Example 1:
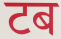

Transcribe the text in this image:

टब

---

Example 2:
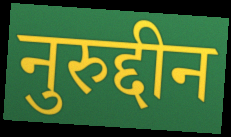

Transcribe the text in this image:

नुरुद्दीन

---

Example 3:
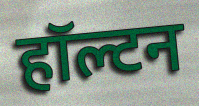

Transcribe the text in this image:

हॉल्टन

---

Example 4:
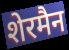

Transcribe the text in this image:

शेरमैन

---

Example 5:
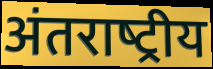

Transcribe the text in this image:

अंतराष्ट्रीय